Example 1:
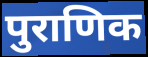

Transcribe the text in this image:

पुराणिक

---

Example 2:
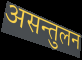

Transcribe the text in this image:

असन्तुलन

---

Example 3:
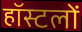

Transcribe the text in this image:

हॉस्टलों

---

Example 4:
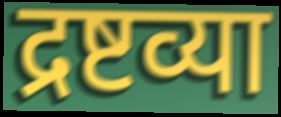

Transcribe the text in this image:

द्रष्टव्या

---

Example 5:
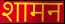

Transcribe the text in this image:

शामन